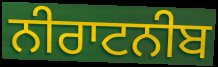
ਨੀਰਾਟਨੀਬ